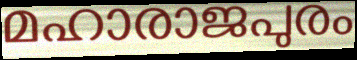
മഹാരാജപുരം